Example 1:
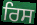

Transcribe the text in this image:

ਰਿਸ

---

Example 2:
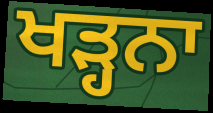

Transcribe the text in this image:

ਖੜ੍ਹਨਾ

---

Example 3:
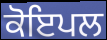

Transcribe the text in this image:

ਕੋਇਪਲ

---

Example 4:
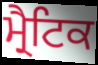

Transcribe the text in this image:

ਮ੍ਰੈਟਿਕ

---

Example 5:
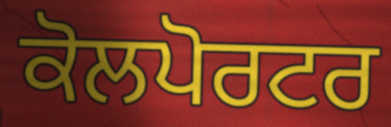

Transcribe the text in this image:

ਕੋਲਪੋਰਟਰ